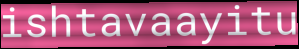
ishtavaayitu